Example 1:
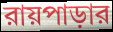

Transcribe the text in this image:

রায়পাড়ার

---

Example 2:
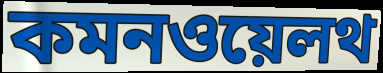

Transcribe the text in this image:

কমনওয়েলথ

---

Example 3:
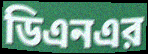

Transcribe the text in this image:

ডিএনএর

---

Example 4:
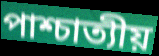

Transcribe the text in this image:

পাশ্চাত্যীয়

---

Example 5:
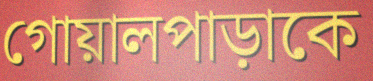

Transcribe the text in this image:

গোয়ালপাড়াকে